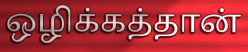
ஒழிக்கத்தான்